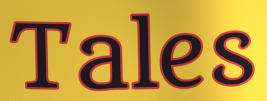
Tales